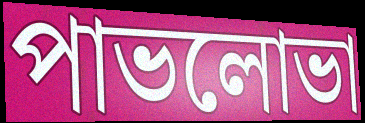
পাভলোভা